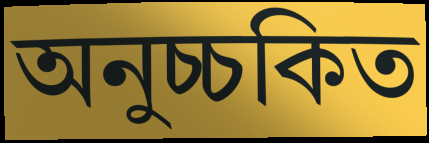
অনুচ্চকিত